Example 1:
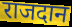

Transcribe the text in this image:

राजदान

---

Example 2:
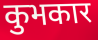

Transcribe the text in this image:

कुभकार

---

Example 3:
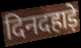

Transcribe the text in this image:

दिनदहाड़े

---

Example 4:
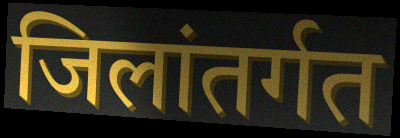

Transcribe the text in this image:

जिलांतर्गत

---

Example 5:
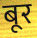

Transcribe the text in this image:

बूर